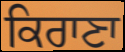
ਕਿਰਾਣਾ